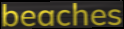
beaches